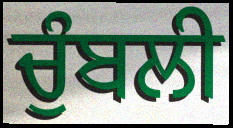
ਚੁੰਬਲੀ